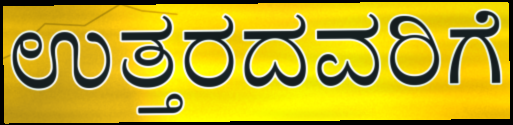
ಉತ್ತರದವರಿಗೆ